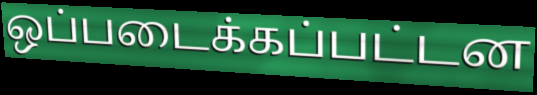
ஒப்படைக்கப்பட்டன